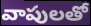
వాపులతో